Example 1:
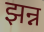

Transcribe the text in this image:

झन्न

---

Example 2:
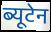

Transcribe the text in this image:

ब्यूटेन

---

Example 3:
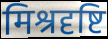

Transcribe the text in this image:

मिश्रदृष्टि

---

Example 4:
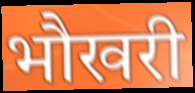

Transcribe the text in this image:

भौखरी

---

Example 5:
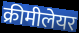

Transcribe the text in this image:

क्रीमीलेयर